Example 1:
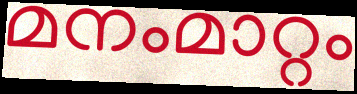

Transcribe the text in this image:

മനംമാറ്റം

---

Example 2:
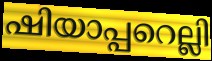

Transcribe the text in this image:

ഷിയാപ്പറെല്ലി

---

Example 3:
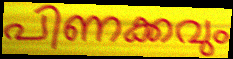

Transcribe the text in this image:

പിണക്കവും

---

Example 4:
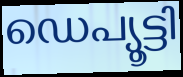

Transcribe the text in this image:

ഡെപ്യൂട്ടി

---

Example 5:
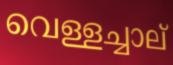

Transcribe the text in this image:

വെള്ളച്ചാല്